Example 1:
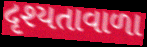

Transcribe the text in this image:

દૃશ્યતાવાળા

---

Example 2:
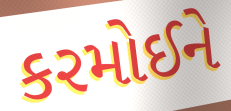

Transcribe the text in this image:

કરમોઈને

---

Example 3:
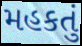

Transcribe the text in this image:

મહકતું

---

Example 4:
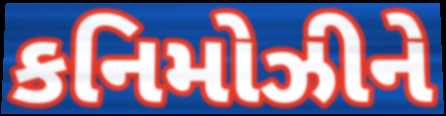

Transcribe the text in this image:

કનિમોઝીને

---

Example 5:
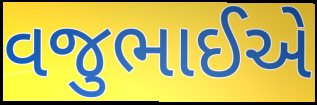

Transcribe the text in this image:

વજુભાઈએ